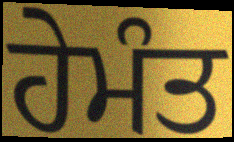
ਹੇਮੰਤ